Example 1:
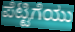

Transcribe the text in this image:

ಪೆಟ್ಟಿಗೆಯು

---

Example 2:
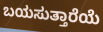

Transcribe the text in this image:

ಬಯಸುತ್ತಾರೆಯೆ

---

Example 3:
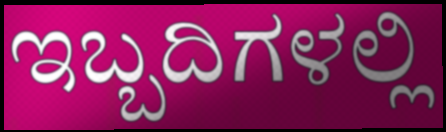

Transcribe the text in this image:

ಇಬ್ಬದಿಗಳಲ್ಲಿ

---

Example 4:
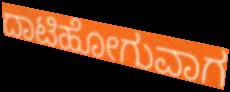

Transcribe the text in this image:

ದಾಟಿಹೋಗುವಾಗ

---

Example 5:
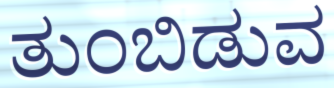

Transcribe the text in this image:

ತುಂಬಿಡುವ